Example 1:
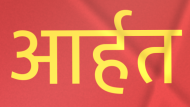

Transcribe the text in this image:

आर्हत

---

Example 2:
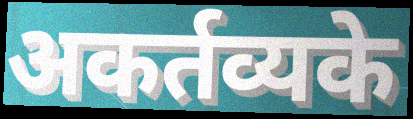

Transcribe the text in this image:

अकर्तव्यके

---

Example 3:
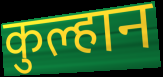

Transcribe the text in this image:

कुल्हान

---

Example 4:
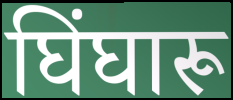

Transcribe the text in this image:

घिंघारू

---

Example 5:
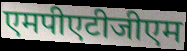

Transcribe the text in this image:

एमपीएटीजीएम